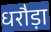
धरौड़ा